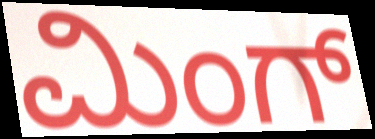
ಮಿಂಗ್